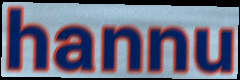
hannu